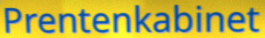
Prentenkabinet